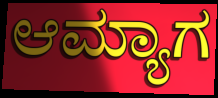
ಆಮ್ಯಾಗ